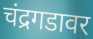
चंद्रगडावर